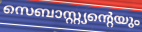
സെബാസ്റ്റ്യന്റെയും